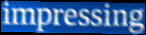
impressing